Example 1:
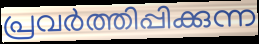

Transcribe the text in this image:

പ്രവർത്തിപ്പിക്കുന്ന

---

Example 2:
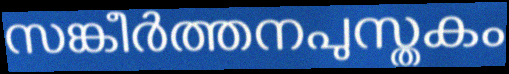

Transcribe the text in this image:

സങ്കീർത്തനപുസ്തകം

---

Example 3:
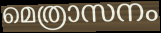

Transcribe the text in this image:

മെത്രാസനം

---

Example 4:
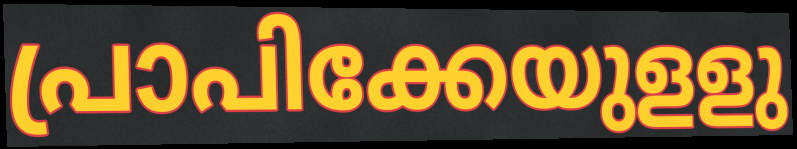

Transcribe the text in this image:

പ്രാപിക്കേയുളളു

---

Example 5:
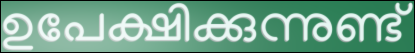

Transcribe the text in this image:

ഉപേക്ഷിക്കുന്നുണ്ട്